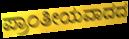
ಪ್ರಾಂತೀಯವಾದದ